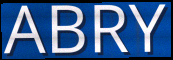
ABRY